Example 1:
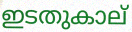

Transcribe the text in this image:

ഇടതുകാല്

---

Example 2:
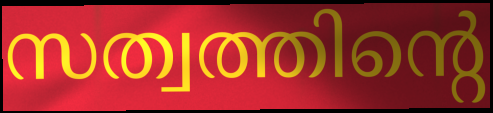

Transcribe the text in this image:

സത്വത്തിന്റെ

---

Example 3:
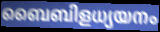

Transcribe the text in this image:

ബൈബിളധ്യയനം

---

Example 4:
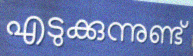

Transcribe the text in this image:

എടുക്കുന്നുണ്ട്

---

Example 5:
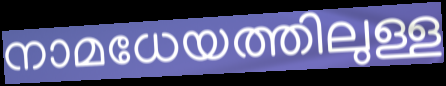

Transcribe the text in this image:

നാമധേയത്തിലുള്ള